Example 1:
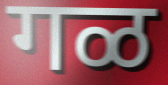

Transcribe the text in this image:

गळ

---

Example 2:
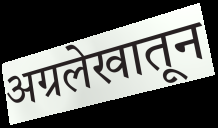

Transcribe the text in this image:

अग्रलेखातून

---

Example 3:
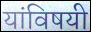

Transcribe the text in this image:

यांविषयी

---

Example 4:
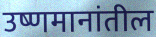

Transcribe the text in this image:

उष्णमानांतील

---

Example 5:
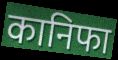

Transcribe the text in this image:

कानिफा